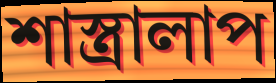
শাস্ত্রালাপ